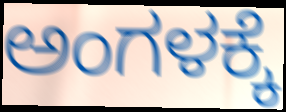
ಅಂಗಳಕ್ಕೆ